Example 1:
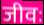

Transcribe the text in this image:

जीवः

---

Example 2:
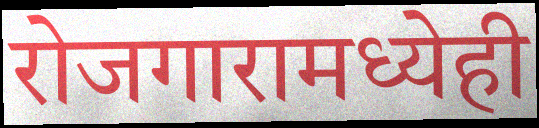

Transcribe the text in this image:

रोजगारामध्येही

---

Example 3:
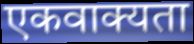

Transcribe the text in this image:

एकवाक्यता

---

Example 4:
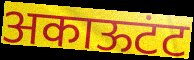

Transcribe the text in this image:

अकाऊटंट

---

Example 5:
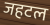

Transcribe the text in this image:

जहटल